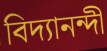
বিদ্যানন্দী